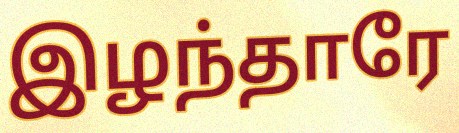
இழந்தாரே